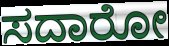
ಸದಾರೋ